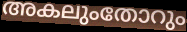
അകലുംതോറും